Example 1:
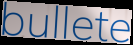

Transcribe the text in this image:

bullete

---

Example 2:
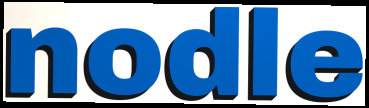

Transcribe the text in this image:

nodle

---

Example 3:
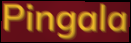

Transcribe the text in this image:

Pingala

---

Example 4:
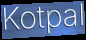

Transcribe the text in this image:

Kotpal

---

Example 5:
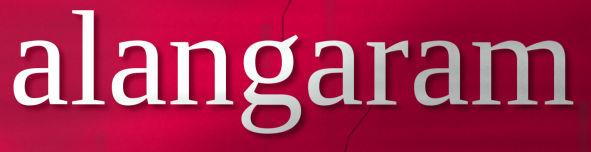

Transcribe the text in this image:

alangaram